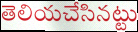
తెలియచేసినట్టు